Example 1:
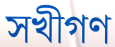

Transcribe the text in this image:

সখীগণ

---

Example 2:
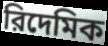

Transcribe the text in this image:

রিদেমিক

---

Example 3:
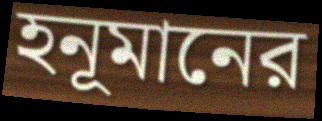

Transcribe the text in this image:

হনূমানের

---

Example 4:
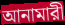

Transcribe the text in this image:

আনামারী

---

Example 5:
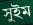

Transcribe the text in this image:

সুইম